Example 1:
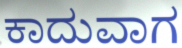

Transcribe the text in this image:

ಕಾದುವಾಗ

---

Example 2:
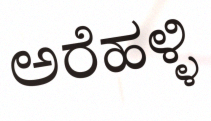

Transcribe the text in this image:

ಅರೆಹಳ್ಳಿ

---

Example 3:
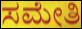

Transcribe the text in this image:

ಸಮೇತಿ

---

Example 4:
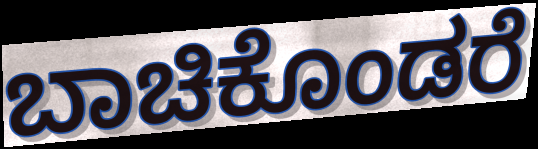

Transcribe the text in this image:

ಬಾಚಿಕೊಂಡರೆ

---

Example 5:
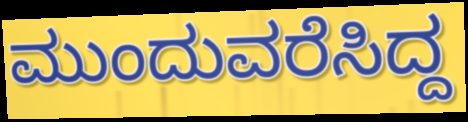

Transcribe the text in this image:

ಮುಂದುವರೆಸಿದ್ದ